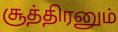
சூத்திரனும்